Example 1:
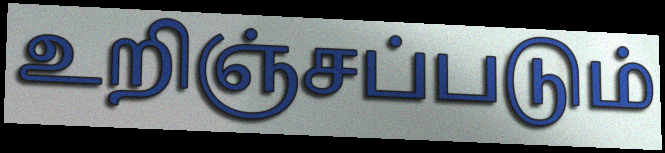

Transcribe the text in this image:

உறிஞ்சப்படும்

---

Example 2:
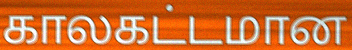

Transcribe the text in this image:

காலகட்டமான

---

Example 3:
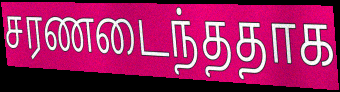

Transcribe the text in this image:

சரணடைந்ததாக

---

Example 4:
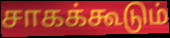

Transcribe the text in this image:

சாகக்கூடும்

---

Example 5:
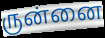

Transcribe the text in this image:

ருன்னை